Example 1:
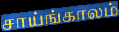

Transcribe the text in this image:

சாய்ங்காலம்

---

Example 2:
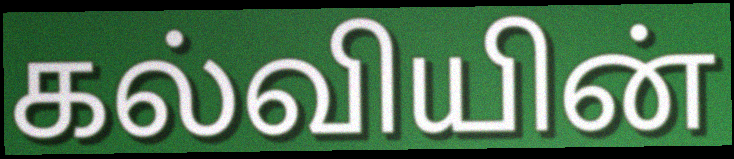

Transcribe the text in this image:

கல்வியின்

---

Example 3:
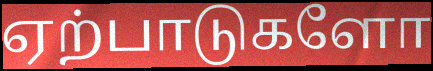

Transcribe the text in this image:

ஏற்பாடுகளோ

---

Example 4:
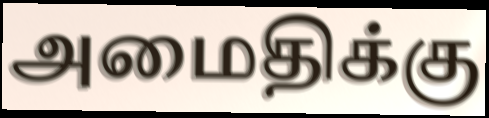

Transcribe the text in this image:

அமைதிக்கு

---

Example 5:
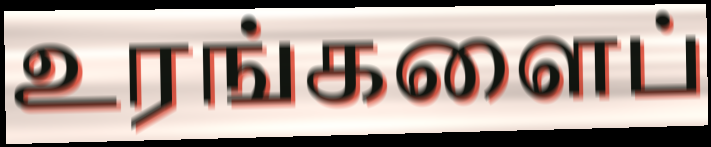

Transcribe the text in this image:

உரங்களைப்